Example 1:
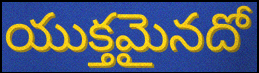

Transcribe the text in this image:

యుక్తమైనదో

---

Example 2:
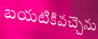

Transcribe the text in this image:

బయటికివచ్చెను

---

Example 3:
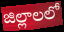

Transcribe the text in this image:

జిల్లాలలో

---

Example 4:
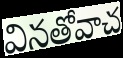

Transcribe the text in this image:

వినతోవాచ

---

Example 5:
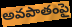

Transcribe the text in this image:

అవపాతంపై